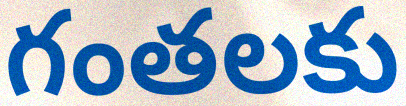
గంతలకు